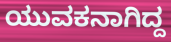
ಯುವಕನಾಗಿದ್ದ